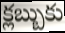
క్లబ్బుకు